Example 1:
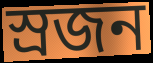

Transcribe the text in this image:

স্ৰজন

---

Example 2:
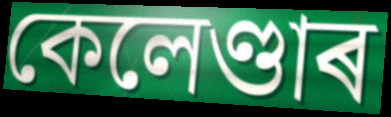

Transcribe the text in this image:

কেলেণ্ডাৰ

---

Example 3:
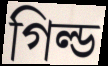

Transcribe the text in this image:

গিল্ড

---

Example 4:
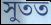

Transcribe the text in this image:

সুতত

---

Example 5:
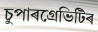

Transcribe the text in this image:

চুপাৰগ্ৰেভিটিৰ